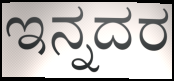
ಇನ್ನದರ